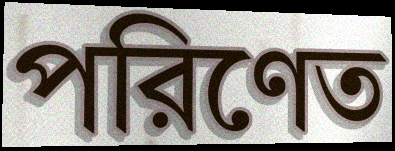
পরিণেত